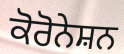
ਕੋਰੋਨੇਸ਼ਨ